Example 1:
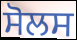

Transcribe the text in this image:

ਸੋਲਸ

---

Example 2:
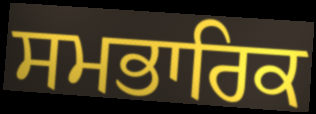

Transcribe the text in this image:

ਸਮਭਾਰਿਕ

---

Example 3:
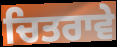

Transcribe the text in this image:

ਚਿਤਰਾਵੇ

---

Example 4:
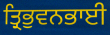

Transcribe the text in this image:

ਤ੍ਰਿਭੁਵਨਭਾਈ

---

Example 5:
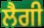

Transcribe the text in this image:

ਲੈਗੀ